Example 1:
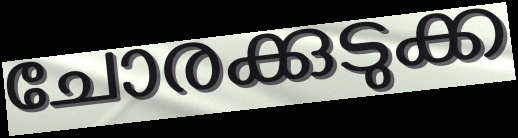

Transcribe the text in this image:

ചോരക്കുടുക്ക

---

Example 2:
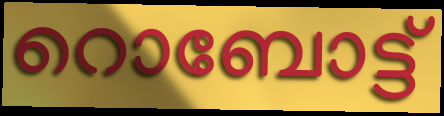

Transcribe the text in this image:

റൊബോട്ട്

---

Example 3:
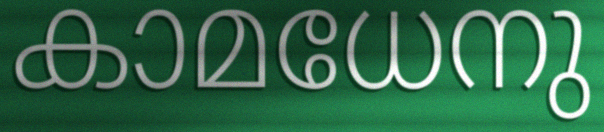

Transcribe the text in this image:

കാമധേനു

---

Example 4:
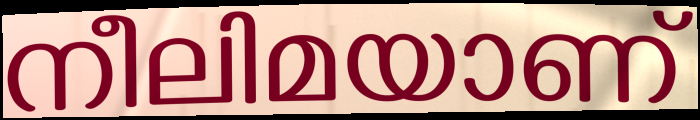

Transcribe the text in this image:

നീലിമയാണ്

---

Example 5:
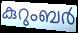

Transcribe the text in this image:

കുറുംബർ